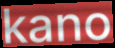
kano